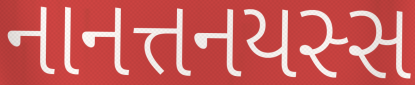
નાનત્તનયસ્સ